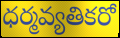
ధర్మవ్యతికరో